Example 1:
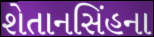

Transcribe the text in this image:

શેતાનસિંહના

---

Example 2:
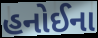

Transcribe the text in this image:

હનોઈના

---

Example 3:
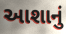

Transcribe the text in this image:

આશાનું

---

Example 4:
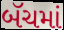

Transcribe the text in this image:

બૅચમાં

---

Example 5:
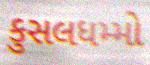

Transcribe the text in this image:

કુસલધમ્મો